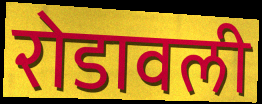
रोडावली